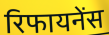
रिफायनेंस